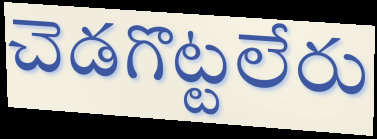
చెడగొట్టలేరు